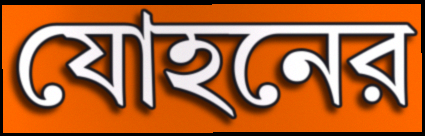
যোহনের